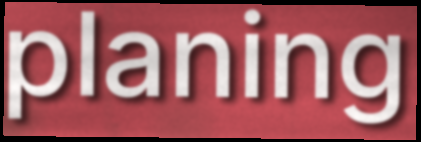
planing